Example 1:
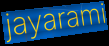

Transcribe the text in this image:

jayarami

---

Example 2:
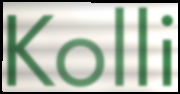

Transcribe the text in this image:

Kolli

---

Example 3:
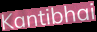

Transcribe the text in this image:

Kantibhai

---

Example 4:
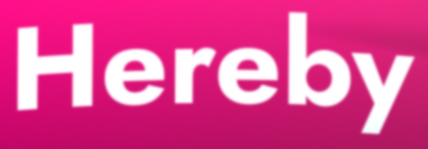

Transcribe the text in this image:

Hereby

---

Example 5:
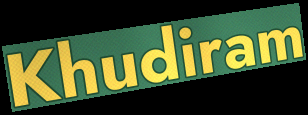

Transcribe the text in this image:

Khudiram